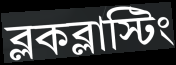
ব্লকব্লাস্টিং